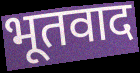
भूतवाद